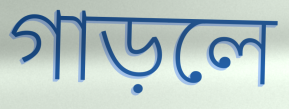
গাড়লে